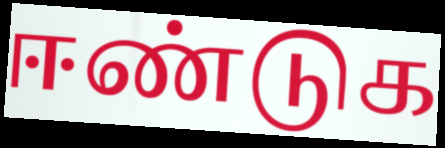
ஈண்டுக